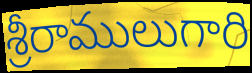
శ్రీరాములుగారి